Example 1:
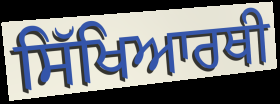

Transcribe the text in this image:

ਸਿੱਖਿਆਰਥੀ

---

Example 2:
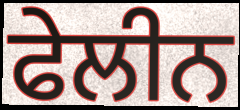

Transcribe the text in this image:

ਫੇਲੀਨ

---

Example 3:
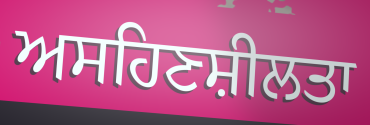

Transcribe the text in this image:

ਅਸਹਿਣਸ਼ੀਲਤਾ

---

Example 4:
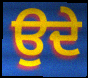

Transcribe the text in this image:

ਉਦੇ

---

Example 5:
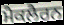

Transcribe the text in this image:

ਮੈਕਲੈਰਨ